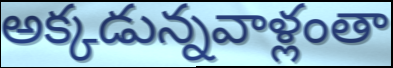
అక్కడున్నవాళ్లంతా